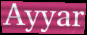
Ayyar